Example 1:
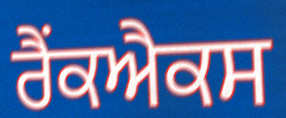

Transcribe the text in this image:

ਰੈਂਕਐਕਸ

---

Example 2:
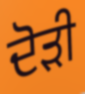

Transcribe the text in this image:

ਦੋੜੀ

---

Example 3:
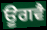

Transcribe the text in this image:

ਊਗਵੈ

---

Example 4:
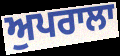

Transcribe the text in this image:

ਅੁਪਰਾਲਾ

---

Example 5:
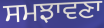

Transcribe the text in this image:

ਸਮਝਾਵਣਾ